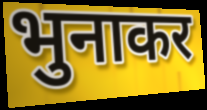
भुनाकर